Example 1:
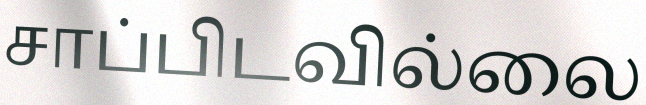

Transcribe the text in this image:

சாப்பிடவில்லை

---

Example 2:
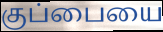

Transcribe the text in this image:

குப்பையை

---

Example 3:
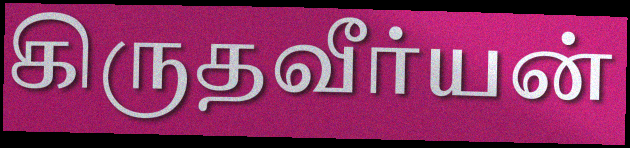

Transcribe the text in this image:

கிருதவீர்யன்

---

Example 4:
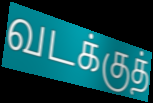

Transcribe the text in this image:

வடக்குத்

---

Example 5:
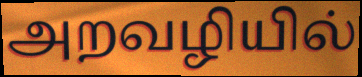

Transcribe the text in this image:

அறவழியில்